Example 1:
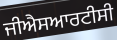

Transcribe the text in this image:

ਜੀਐਸਆਰਟੀਸੀ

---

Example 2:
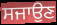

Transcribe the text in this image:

ਸਜਾਉਣ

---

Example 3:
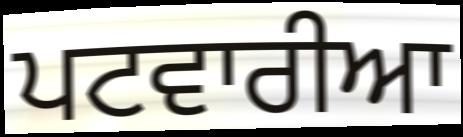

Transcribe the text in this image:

ਪਟਵਾਰੀਆ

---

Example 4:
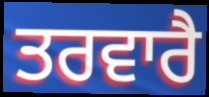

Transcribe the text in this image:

ਤਰਵਾਰੈ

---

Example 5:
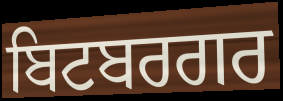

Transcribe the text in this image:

ਬਿਟਬਰਗਰ